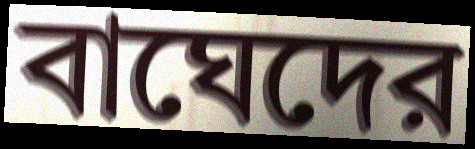
বাঘেদের